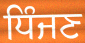
ਧਿੰਜਣ